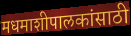
मधमाशीपालकांसाठी